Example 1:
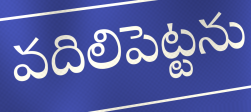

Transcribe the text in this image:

వదిలిపెట్టను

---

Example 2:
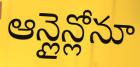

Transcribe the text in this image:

ఆన్లైన్లోనూ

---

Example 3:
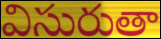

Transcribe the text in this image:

విసురుతా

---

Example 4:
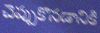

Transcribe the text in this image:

చెప్పుకొనడానికి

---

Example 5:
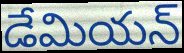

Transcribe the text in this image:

డేమియన్